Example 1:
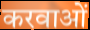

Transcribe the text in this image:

करवाओं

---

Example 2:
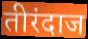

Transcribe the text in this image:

तीरंदाज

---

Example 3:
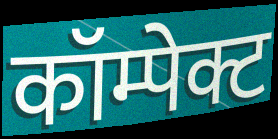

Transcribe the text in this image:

कॉम्पेक्ट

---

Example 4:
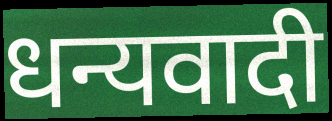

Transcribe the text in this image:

धन्यवादी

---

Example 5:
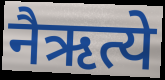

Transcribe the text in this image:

नैऋत्ये